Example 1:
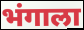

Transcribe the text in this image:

भंगाला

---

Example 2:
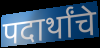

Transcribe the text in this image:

पदार्थांचे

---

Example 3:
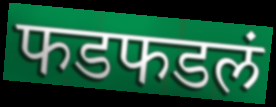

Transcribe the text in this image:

फडफडलं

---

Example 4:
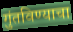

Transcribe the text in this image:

गुंतविण्याचा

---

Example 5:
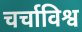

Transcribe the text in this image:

चर्चाविश्व